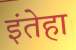
इंतेहा